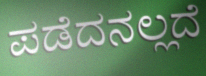
ಪಡೆದನಲ್ಲದೆ